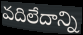
వదిలేదాన్ని